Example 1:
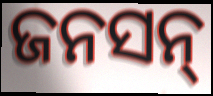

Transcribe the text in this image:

ଜନସନ୍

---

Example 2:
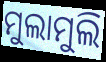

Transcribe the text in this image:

ମୁଲାମୁଲି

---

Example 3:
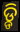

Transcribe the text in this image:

ଡ଼୍ଡି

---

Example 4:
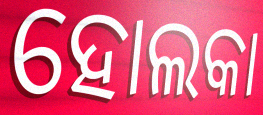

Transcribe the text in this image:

ହୋଲକା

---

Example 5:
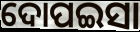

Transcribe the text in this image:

ଦୋପଇସା